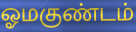
ஓமகுண்டம்